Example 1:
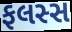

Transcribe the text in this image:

ફલસ્સ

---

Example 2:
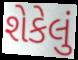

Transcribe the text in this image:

શેકેલું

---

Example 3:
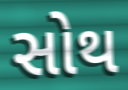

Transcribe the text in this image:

સોથ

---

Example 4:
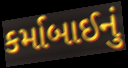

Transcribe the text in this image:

કર્માબાઈનું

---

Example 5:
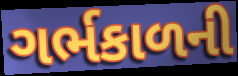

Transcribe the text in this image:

ગર્ભકાળની